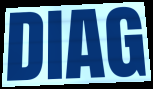
DIAG